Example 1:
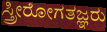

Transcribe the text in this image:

ಸ್ತ್ರೀರೋಗತಜ್ಞರು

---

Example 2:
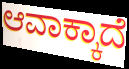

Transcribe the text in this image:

ಆವಾಕ್ಕಾದೆ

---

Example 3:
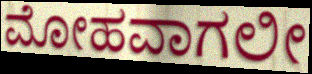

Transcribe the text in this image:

ಮೋಹವಾಗಲೀ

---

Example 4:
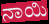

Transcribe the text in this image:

ನಾಯಿ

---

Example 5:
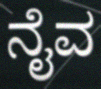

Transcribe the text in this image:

ನೈವ